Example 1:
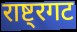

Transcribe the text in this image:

राष्ट्रगट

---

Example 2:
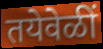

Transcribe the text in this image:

तयेवेळीं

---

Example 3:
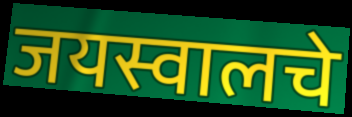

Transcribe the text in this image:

जयस्वालचे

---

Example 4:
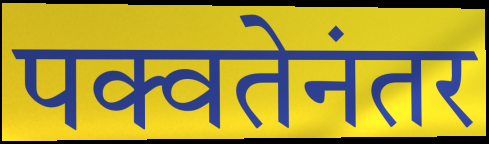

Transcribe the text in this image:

पक्वतेनंतर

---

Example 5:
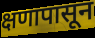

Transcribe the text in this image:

क्षणापासून